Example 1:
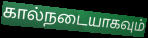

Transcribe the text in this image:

கால்நடையாகவும்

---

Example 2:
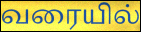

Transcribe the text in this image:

வரையில்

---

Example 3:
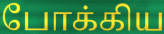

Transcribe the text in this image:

போக்கிய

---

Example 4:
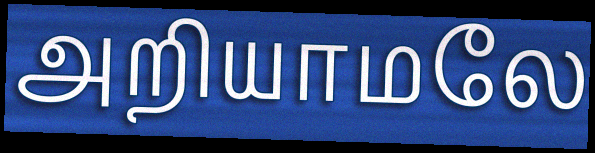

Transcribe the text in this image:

அறியாமலே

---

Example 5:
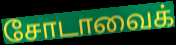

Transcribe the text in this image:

சோடாவைக்